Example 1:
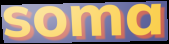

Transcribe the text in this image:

soma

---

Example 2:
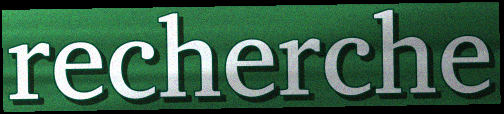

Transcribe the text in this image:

recherche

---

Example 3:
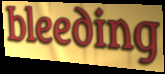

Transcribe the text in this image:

bleeding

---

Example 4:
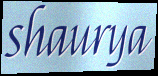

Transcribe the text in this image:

shaurya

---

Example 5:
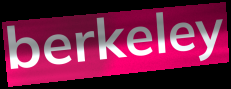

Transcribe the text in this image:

berkeley